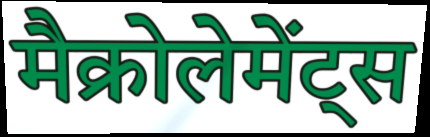
मैक्रोलेमेंट्स